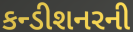
કન્ડીશનરની